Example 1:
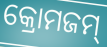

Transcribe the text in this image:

କ୍ରୋମଜମ୍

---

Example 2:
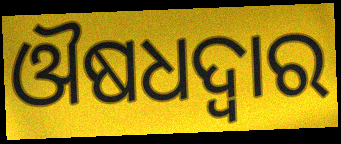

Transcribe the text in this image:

ଔଷଧଦ୍ୱାର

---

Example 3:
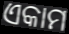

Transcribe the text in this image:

ଏକାମ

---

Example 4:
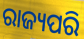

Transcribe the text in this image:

ରାଜ୍ୟପରି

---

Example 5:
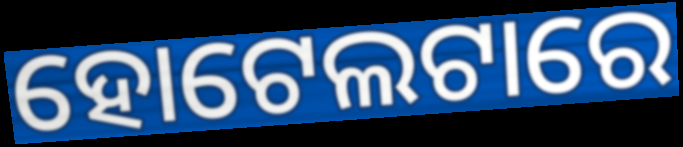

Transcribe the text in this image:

ହୋଟେଲଟାରେ